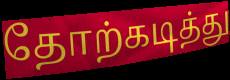
தோற்கடித்து